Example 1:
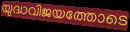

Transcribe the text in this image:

യുദ്ധവിജയത്തോടെ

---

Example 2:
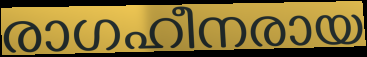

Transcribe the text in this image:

രാഗഹീനരായ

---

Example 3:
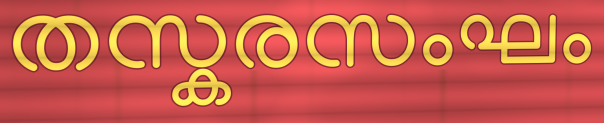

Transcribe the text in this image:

തസ്കരസംഘം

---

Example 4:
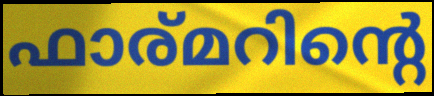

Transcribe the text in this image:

ഫാര്മറിന്റെ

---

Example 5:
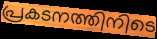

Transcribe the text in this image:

പ്രകടനത്തിനിടെ